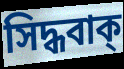
সিদ্ধবাক্